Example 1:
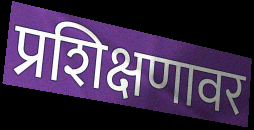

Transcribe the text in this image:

प्रशिक्षणावर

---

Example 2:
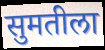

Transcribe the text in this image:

सुमतीला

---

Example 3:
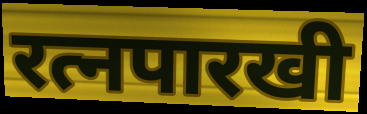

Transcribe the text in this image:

रत्नपारखी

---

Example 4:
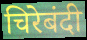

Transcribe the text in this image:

चिरेबंदी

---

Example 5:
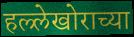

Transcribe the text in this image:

हल्लेखोराच्या